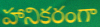
హానికరంగా